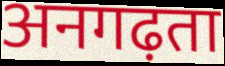
अनगढ़ता